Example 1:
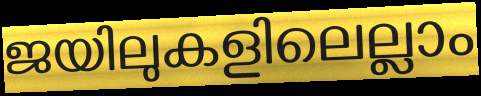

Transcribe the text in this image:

ജയിലുകളിലെല്ലാം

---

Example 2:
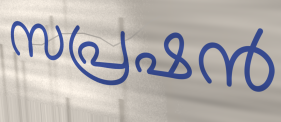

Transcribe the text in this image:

സപ്രഷൻ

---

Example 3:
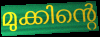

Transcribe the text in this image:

മുക്കിന്റെ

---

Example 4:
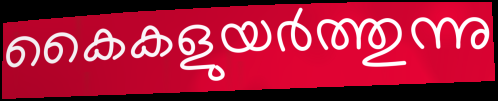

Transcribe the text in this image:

കൈകളുയർത്തുന്നു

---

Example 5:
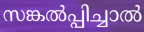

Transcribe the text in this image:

സങ്കൽപ്പിച്ചാൽ